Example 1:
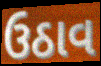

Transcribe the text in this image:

ઉઠાવ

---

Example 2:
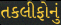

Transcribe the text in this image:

તકલીફોનું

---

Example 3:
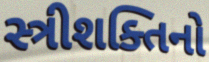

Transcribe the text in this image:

સ્ત્રીશક્તિનો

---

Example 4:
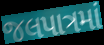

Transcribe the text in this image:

જલપાત્રમાં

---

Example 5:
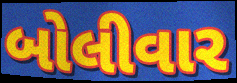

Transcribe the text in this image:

બોલીવાર